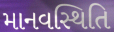
માનવસ્થિતિ